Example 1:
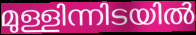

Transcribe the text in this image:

മുള്ളിന്നിടയിൽ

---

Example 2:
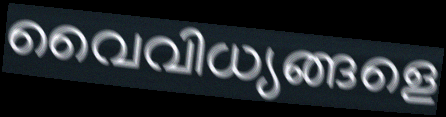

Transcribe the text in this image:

വൈവിധ്യങ്ങളെ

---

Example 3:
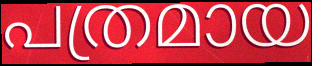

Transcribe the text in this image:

പത്രമായ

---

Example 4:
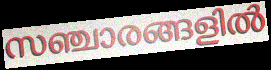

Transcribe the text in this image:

സഞ്ചാരങ്ങളിൽ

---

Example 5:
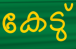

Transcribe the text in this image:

കേടു്